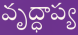
వృద్ధాప్య